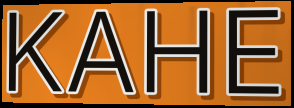
KAHE